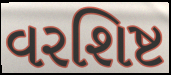
વરશિષ્ટ